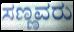
ಸಣ್ಣವರು